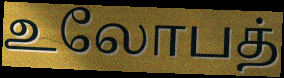
உலோபத்